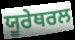
ਯੂਰੇਥਰਲ